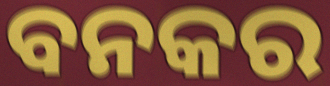
ବନକର